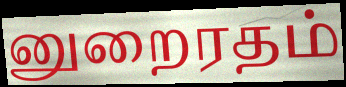
னுறைரதம்